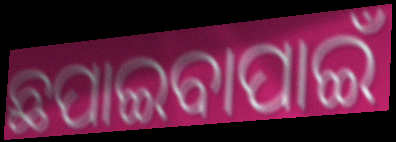
ଛପାଇବାପାଇଁ